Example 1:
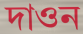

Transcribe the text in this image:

দাওন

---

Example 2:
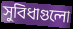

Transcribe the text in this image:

সুবিধাগুলো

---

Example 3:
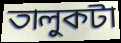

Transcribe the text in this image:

তালুকটা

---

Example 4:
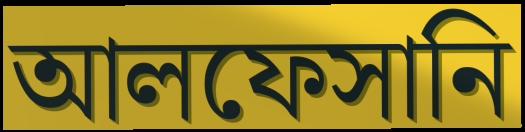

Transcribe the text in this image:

আলফেসানি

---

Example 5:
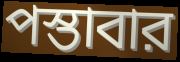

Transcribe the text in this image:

পস্তাবার